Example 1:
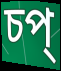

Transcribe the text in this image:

চপ্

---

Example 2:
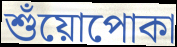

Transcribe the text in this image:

শুঁয়োপোকা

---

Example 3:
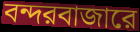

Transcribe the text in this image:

বন্দরবাজারে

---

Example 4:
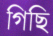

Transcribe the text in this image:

গিছি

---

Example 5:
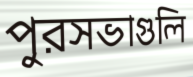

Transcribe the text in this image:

পুরসভাগুলি